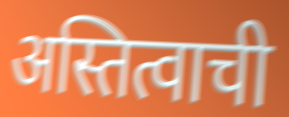
अस्तित्वाची